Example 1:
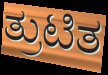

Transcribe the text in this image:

ತ್ರುಟಿತ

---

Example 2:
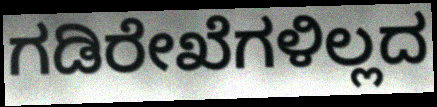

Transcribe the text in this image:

ಗಡಿರೇಖೆಗಳಿಲ್ಲದ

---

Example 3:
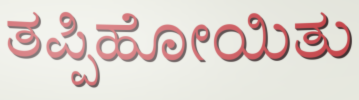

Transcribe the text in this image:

ತಪ್ಪಿಹೋಯಿತು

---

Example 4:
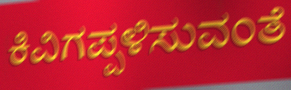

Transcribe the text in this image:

ಕಿವಿಗಪ್ಪಳಿಸುವಂತೆ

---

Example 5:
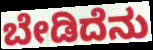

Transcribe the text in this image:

ಬೇಡಿದೆನು